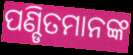
ପଣ୍ଡିତମାନଙ୍କ